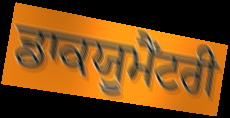
ਡਾਕਯੂਮੈਂਟਰੀ